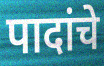
पादांचे